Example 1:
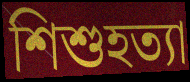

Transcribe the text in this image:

শিশুহত্যা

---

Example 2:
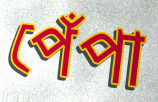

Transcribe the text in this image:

পেঁপা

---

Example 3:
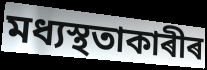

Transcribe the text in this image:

মধ্যস্থতাকাৰীৰ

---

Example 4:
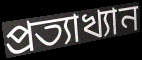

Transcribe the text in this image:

প্ৰত্যাখ্যান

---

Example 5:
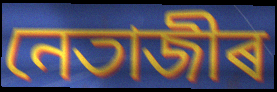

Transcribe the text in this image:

নেতাজীৰ